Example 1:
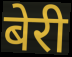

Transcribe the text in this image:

बेरी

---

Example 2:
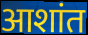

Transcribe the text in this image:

आशांत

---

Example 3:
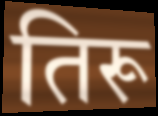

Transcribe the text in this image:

तिरू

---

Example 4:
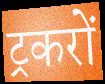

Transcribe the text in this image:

ट्रकरों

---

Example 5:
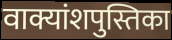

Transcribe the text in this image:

वाक्यांशपुस्तिका